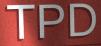
TPD